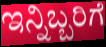
ಇನ್ನಿಬ್ಬರಿಗೆ